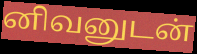
னிவனுடன்